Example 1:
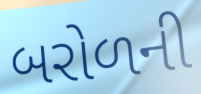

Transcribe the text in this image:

બરોળની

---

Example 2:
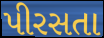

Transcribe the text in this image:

પીરસતા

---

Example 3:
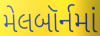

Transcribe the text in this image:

મેલબૉર્નમાં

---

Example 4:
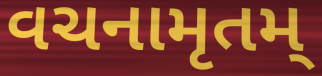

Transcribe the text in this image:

વચનામૃતમ્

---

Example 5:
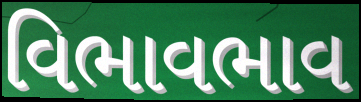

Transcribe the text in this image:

વિભાવભાવ